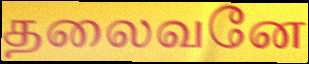
தலைவனே